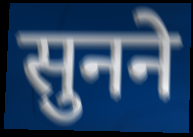
सुनने